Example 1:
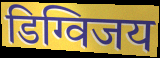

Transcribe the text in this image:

डिग्विजय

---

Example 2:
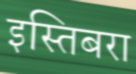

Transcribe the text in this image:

इस्तिबरा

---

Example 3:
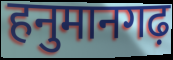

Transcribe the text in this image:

हनुमानगढ़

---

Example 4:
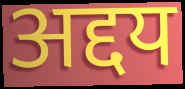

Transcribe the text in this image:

अद्दय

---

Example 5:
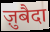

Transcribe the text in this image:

ज़ुबैदा